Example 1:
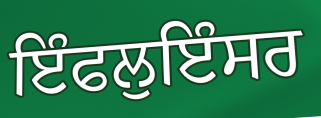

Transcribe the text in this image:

ਇੰਫਲੁਇੰਸਰ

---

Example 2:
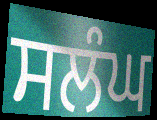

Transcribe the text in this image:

ਸਲੰਘ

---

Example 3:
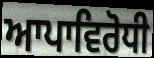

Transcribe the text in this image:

ਆਪਾਵਿਰੋਧੀ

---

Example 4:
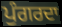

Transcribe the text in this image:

ਪੁੰਗਰਦਾ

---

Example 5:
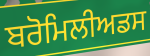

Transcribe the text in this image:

ਬਰੋਮਿਲੀਅਡਸ